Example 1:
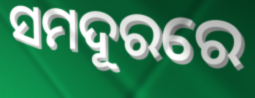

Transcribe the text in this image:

ସମଦୂରରେ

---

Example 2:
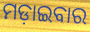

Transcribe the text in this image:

ମଡ଼ାଇବାର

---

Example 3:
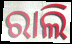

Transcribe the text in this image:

ରାଲି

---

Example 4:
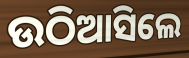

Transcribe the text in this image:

ଉଠିଆସିଲେ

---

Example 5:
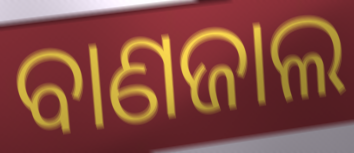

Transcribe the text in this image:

ବାଣଜାଲ